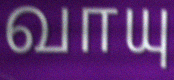
வாயு